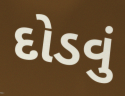
દોડવું